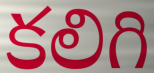
కలిగి